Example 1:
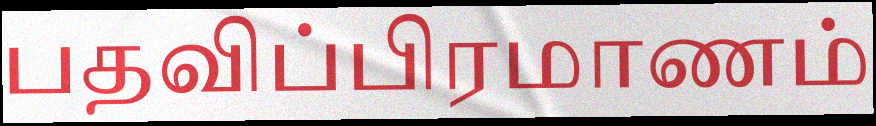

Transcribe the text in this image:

பதவிப்பிரமாணம்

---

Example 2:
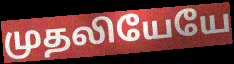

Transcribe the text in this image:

முதலியேயே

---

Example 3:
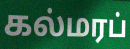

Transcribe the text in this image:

கல்மரப்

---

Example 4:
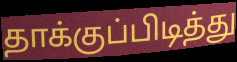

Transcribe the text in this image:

தாக்குப்பிடித்து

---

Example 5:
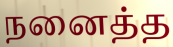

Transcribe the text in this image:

நனைத்த